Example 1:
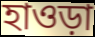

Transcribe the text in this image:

হাওড়া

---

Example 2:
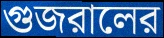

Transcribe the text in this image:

গুজরালের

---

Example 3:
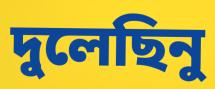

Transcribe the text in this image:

দুলেছিনু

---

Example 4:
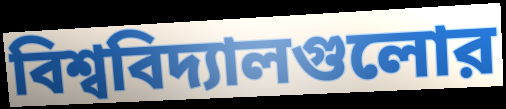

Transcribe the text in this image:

বিশ্ববিদ্যালগুলোর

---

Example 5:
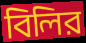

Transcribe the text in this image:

বিলির